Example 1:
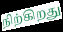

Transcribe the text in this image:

நிற்கிறது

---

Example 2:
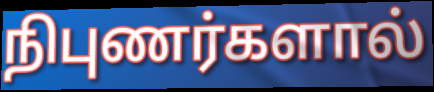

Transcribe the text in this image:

நிபுணர்களால்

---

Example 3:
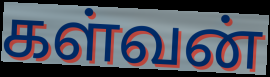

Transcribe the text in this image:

கள்வன்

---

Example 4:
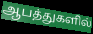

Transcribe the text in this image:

ஆபத்துகளில்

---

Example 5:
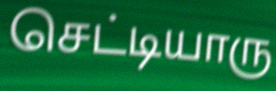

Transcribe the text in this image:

செட்டியாரு